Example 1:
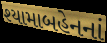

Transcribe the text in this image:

શ્યામાબહેનનાં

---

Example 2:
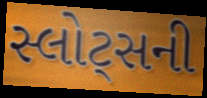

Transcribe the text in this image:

સ્લોટ્સની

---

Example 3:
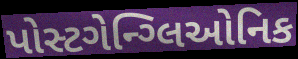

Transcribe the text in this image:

પોસ્ટગેન્ગ્લિઓનિક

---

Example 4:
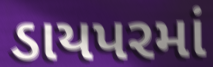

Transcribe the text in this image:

ડાયપરમાં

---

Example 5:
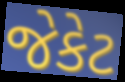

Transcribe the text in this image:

જેકેટ